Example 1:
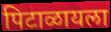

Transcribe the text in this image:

पिटाळायला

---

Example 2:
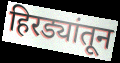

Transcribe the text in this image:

हिरड्यांतून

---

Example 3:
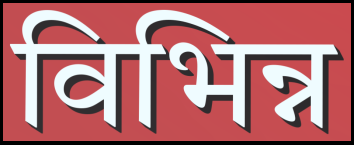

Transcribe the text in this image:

विभिन्न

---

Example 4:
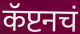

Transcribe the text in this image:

कॅप्टनचं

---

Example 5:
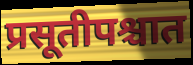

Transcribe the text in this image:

प्रसूतीपश्चात